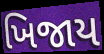
ખિજાય